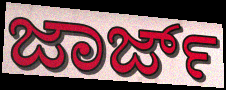
ಜಾರ್ಜ್